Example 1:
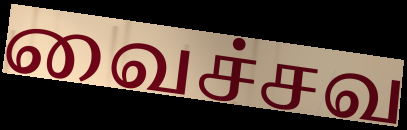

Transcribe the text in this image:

வைச்சவ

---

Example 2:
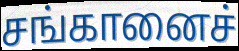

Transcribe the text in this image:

சங்கானைச்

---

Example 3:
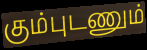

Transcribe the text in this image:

கும்புடணும்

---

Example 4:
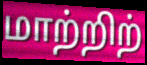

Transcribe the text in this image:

மாற்றிற்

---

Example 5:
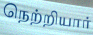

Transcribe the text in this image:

நெற்றியார்